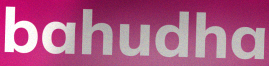
bahudha